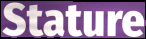
Stature